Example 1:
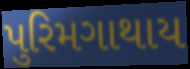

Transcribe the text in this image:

પુરિમગાથાય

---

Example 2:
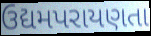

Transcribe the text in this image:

ઉદ્યમપરાયણતા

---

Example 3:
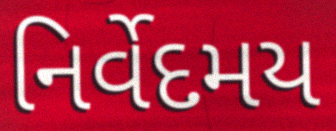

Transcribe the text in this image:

નિર્વેદમય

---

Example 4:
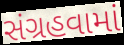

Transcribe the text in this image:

સંગ્રહવામાં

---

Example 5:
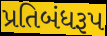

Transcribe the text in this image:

પ્રતિબંધરૂપ